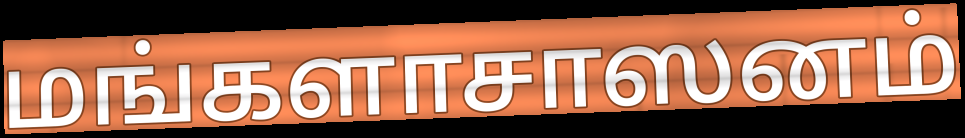
மங்களாசாஸனம்